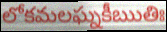
లోకమలఘ్నకీఋతిః